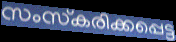
സംസ്‌കരിക്കപ്പെട്ട